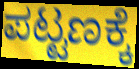
ಪಟ್ಟಣಕ್ಕೆ